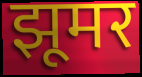
झूमर